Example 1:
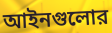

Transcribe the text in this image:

আইনগুলোর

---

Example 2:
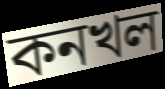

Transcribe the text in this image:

কনখল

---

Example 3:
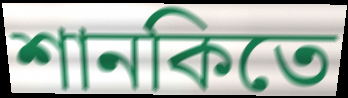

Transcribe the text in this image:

শানকিতে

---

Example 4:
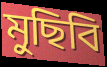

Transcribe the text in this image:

মুছিবি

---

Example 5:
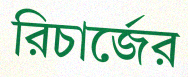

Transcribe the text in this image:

রিচার্জের